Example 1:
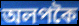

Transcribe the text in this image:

অলপকৈ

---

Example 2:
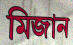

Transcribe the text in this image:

মিজান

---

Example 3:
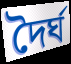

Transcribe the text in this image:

দৈৰ্ঘ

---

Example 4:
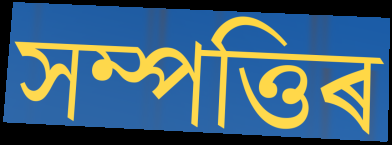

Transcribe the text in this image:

সম্পত্তিৰ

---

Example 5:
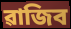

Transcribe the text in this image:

ৱাজিব